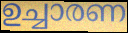
ഉച്ചാരണ